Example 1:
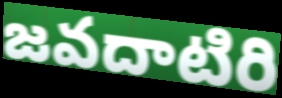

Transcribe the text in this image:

జవదాటిరి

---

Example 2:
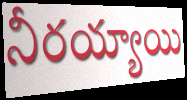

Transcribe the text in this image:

నీరయ్యాయి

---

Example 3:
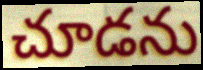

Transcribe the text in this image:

చూడను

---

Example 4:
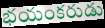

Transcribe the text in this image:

భయంకరుడు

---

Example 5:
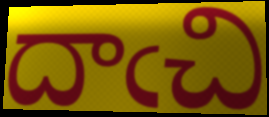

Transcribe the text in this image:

దాఁచి